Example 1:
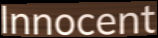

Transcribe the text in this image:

Innocent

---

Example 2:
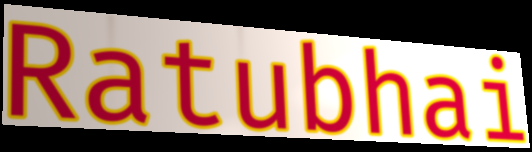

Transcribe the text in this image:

Ratubhai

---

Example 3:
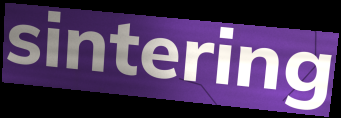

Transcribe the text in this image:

sintering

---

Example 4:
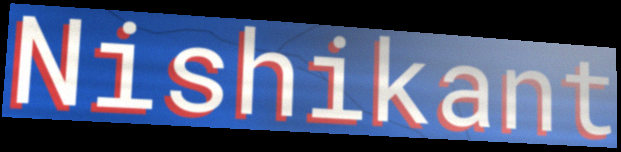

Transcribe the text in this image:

Nishikant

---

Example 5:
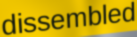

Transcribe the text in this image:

dissembled